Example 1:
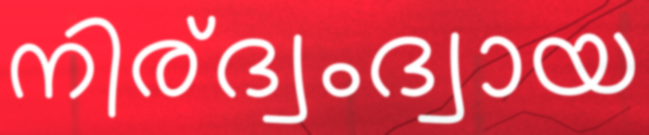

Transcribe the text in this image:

നിര്ദ്വംദ്വായ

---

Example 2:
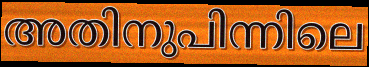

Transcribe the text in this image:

അതിനുപിന്നിലെ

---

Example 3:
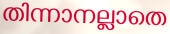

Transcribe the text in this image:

തിന്നാനല്ലാതെ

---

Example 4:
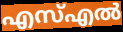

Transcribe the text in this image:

എസ്എൽ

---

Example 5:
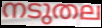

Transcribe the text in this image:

നടുതല